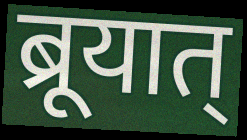
ब्रूयात्